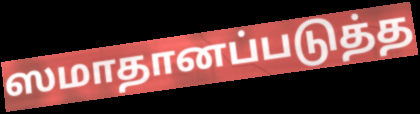
ஸமாதானப்படுத்த